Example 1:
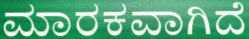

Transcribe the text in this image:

ಮಾರಕವಾಗಿದೆ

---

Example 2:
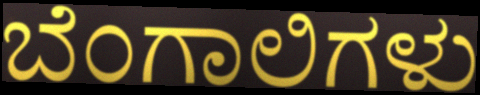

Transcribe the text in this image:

ಬೆಂಗಾಲಿಗಳು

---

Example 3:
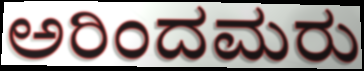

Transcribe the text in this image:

ಅರಿಂದಮರು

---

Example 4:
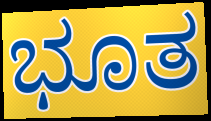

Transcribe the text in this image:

ಭೂತ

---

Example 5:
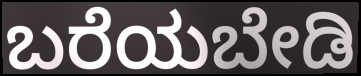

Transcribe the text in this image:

ಬರೆಯಬೇಡಿ